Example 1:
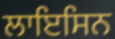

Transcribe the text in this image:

ਲਾਇਸਿਨ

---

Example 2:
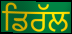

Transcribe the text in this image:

ਡਿਰੱਲ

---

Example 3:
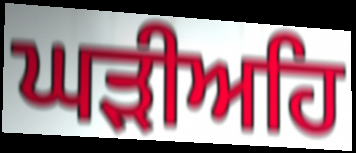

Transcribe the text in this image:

ਘੜੀਅਹਿ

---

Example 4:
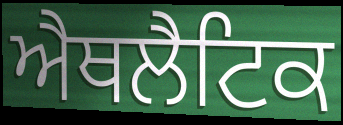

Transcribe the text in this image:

ਐਥਲੈਟਿਕ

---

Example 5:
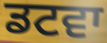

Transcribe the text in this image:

ਡਟਵਾ